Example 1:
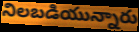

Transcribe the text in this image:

నిలబడియున్నారు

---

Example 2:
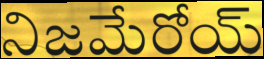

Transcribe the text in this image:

నిజమేరోయ్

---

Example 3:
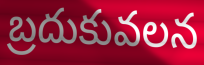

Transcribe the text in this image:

బ్రదుకువలన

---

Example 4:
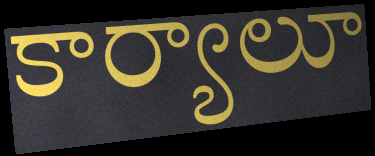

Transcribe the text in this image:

కార్యాలూ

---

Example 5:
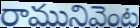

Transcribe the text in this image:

రామునివెంట